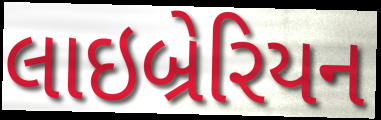
લાઇબ્રેરિયન